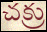
చక్రు